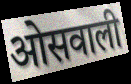
ओसवाली